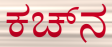
ಕಚ್‌ನ